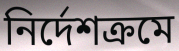
নির্দেশক্রমে